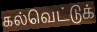
கல்வெட்டுக்